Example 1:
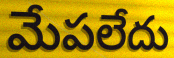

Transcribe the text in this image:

మేపలేదు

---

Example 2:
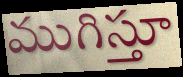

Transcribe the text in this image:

ముగిస్తూ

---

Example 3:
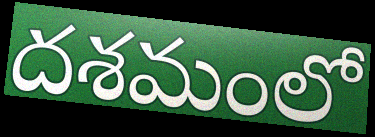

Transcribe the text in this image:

దశమంలో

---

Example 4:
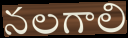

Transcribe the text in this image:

నలగాలి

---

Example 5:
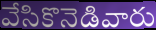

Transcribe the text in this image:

వేసికొనెడివారు